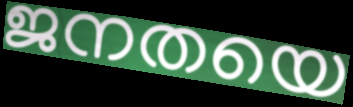
ജനതയെ